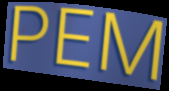
PEM